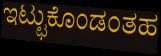
ಇಟ್ಟುಕೊಂಡಂತಹ